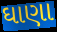
ઘાણા